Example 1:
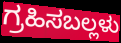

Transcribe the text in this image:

ಗ್ರಹಿಸಬಲ್ಲಳು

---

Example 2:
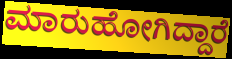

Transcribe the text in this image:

ಮಾರುಹೋಗಿದ್ದಾರೆ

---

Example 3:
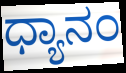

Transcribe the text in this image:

ಧ್ಯಾನಂ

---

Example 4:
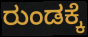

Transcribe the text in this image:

ರುಂಡಕ್ಕೆ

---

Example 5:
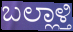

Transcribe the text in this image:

ಬಲ್ಲಾಳ್ತಿ